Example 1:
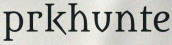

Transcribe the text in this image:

prkhunte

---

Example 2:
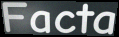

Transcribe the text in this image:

Facta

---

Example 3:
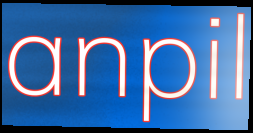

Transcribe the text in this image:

anpil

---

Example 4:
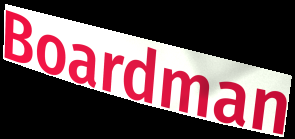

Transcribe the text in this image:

Boardman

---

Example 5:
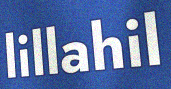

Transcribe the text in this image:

lillahil